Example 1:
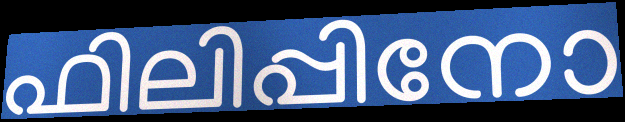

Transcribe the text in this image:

ഫിലിപ്പിനോ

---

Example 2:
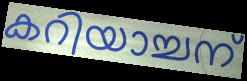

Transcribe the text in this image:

കറിയാച്ചന്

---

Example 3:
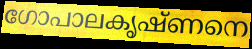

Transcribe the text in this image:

ഗോപാലകൃഷ്ണനെ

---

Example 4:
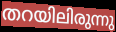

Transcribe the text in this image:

തറയിലിരുന്നു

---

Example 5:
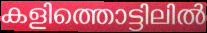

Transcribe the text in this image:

കളിത്തൊട്ടിലിൽ